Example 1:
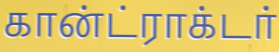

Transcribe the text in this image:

கான்ட்ராக்டர்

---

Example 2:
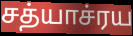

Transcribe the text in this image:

சத்யாச்ரய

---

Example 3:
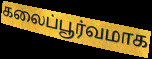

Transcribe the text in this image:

கலைப்பூர்வமாக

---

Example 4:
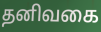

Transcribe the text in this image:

தனிவகை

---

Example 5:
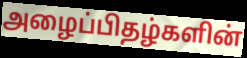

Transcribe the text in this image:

அழைப்பிதழ்களின்